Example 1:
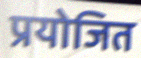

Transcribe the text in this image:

प्रयोजित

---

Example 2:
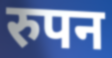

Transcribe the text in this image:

रुपन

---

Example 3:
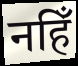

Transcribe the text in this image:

नहिँ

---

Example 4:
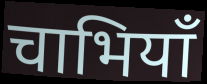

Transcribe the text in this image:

चाभियाँ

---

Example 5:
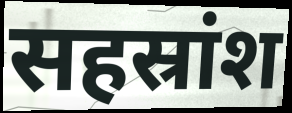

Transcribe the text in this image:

सहस्रांश